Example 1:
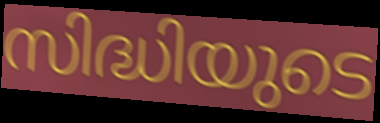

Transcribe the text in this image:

സിദ്ധിയുടെ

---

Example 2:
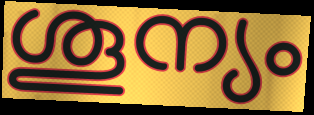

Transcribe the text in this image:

ശൂന്യം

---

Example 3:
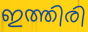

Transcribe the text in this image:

ഇത്തിരി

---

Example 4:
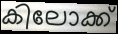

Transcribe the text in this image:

കിലോക്ക്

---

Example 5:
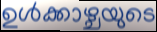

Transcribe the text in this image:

ഉൾക്കാഴ്ചയുടെ